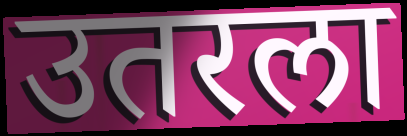
उतरला